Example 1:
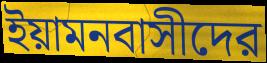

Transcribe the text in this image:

ইয়ামনবাসীদের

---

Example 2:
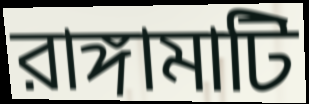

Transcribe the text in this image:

রাঙ্গামাটি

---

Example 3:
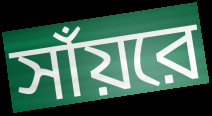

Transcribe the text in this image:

সাঁয়রে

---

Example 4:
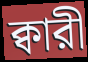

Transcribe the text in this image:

ক্বারী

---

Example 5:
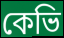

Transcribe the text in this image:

কেভি